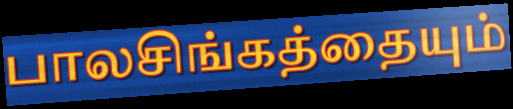
பாலசிங்கத்தையும்